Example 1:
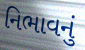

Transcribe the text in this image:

નિભાવનું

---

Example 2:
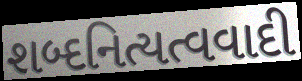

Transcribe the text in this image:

શબ્દનિત્યત્વવાદી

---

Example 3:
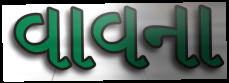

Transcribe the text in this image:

વાવના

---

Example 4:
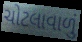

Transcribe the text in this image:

ચોટલાવાળું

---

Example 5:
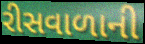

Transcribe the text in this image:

રીસવાળાની